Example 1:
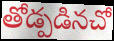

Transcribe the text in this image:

తోడ్పడినచో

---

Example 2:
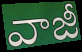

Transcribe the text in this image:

వాజీ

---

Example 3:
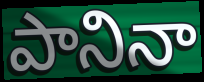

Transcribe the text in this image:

పానినా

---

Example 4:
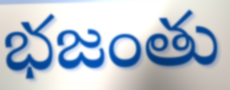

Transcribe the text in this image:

భజంతు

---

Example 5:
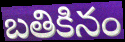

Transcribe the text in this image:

బతికినం